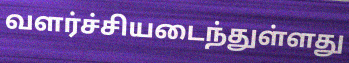
வளர்ச்சியடைந்துள்ளது